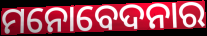
ମନୋବେଦନାର